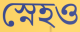
স্নেহও